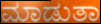
ಮಾಡುತಾ